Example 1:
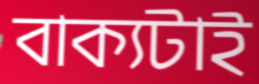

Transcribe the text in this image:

বাক্যটাই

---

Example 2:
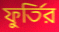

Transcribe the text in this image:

ফুর্তির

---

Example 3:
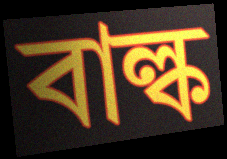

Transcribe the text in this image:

বাল্ক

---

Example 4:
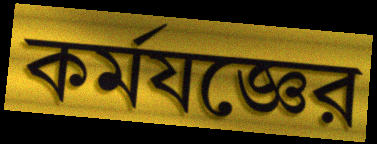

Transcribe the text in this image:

কর্মযজ্ঞের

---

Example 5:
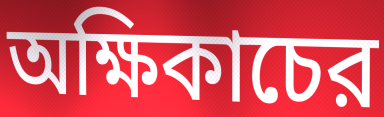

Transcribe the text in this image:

অক্ষিকাচের